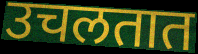
उचलतात